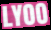
LYOO